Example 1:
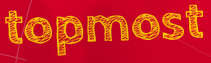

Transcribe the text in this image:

topmost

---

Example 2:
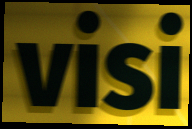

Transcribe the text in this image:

visi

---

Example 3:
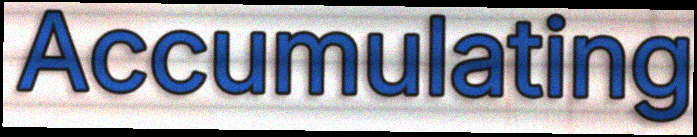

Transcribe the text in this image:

Accumulating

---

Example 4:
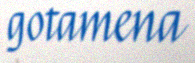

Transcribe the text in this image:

gotamena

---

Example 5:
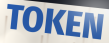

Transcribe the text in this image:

TOKEN